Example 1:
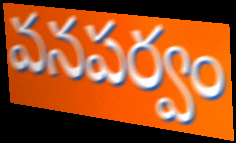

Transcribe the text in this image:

వనపర్వం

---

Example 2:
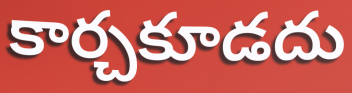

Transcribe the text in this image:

కార్చకూడదు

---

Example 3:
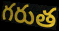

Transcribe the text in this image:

గరుత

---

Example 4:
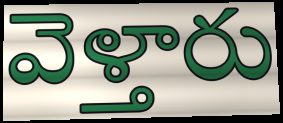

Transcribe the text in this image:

వెళ్తారు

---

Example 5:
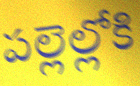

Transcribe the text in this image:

పల్లెల్లోకి